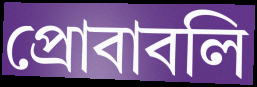
প্রোবাবলি